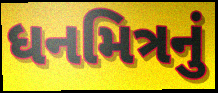
ધનમિત્રનું